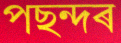
পছন্দৰ